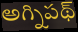
అగ్నిపథ్